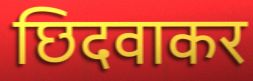
छिदवाकर